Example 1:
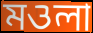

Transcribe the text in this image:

মওলা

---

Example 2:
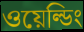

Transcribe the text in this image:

ওয়েল্ডিং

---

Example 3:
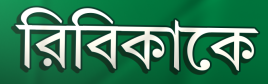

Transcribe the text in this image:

রিবিকাকে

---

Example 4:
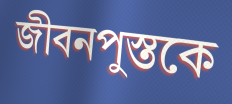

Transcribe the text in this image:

জীবনপুস্তকে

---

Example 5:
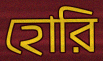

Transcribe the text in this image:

হোরি